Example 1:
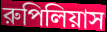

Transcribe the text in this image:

রুপিলিয়াস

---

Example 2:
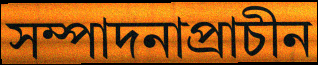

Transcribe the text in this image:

সম্পাদনাপ্রাচীন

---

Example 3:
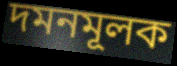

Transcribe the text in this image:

দমনমূলক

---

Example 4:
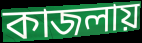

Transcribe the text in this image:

কাজলায়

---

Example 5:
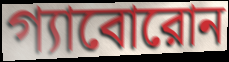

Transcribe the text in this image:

গ্যাবোরোন